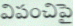
విపంచిపై